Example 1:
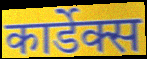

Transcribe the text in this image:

कार्डेक्स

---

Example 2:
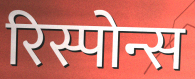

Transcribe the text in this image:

रिस्पोन्स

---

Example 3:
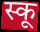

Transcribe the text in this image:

स्कू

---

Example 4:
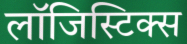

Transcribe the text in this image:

लॉजिस्टिक्‍स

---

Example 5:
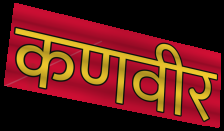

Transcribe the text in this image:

कणवीर